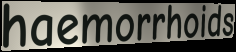
haemorrhoids